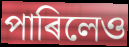
পাৰিলেও